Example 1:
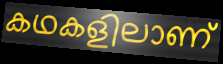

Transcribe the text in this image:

കഥകളിലാണ്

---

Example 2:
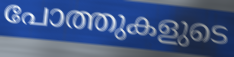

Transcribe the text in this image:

പോത്തുകളുടെ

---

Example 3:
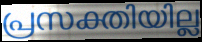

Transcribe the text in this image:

പ്രസക്തിയില്ല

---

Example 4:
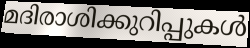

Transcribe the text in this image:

മദിരാശിക്കുറിപ്പുകൾ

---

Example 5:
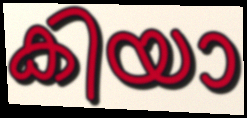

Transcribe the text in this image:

കിയാ